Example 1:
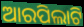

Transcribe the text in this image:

ଆରପିଲାଟି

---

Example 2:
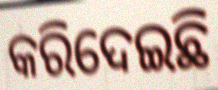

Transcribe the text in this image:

କରିଦେଇଛି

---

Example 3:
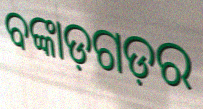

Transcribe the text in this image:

ବଙ୍କାଡ଼ଗଡ଼ର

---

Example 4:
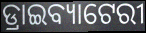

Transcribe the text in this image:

ଡ୍ରାଇବ୍ୟାଟେରୀ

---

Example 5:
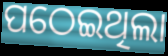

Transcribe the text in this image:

ପଠେଇଥିଲା